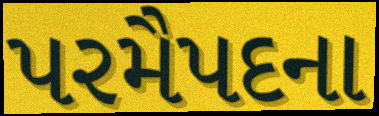
પરમૈપદના